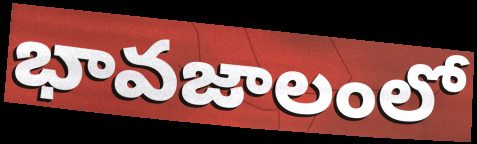
భావజాలంలో